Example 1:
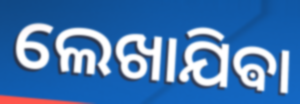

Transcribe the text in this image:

ଲେଖାଯିଵା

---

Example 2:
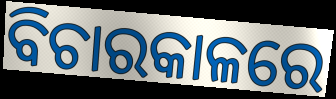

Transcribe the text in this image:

ବିଚାରକାଳରେ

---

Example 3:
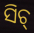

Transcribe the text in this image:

ସିଚ୍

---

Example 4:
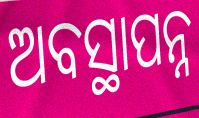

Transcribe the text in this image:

ଅବସ୍ଥାପନ୍ନ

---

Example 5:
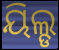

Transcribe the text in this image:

ୟିଲ୍ଡ